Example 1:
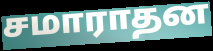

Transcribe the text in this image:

சமாராதன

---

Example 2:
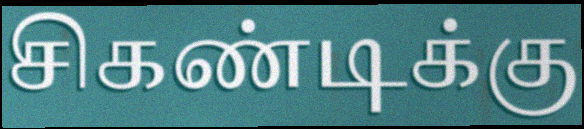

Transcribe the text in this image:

சிகண்டிக்கு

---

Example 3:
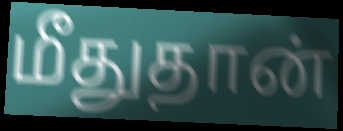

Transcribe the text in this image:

மீதுதான்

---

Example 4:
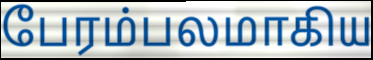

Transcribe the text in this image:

பேரம்பலமாகிய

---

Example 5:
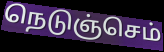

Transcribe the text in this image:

நெடுஞ்செம்